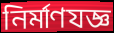
নির্মাণযজ্ঞ